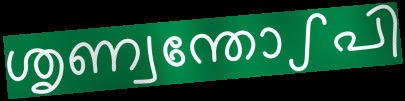
ശൃണ്വന്തോഽപി